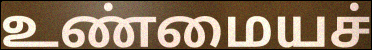
உண்மையச்